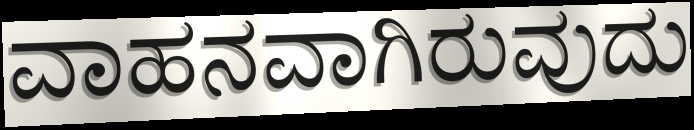
ವಾಹನವಾಗಿರುವುದು